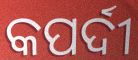
କପର୍ଦୀ